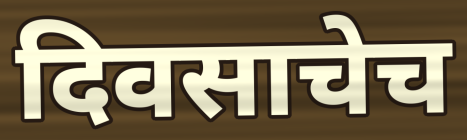
दिवसाचेच